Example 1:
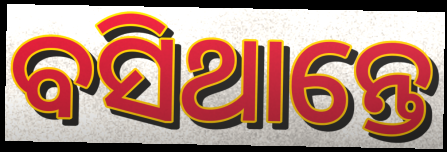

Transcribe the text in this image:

ବସିଥାନ୍ତେ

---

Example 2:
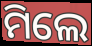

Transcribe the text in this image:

ମିଲେ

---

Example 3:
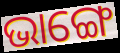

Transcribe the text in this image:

ଭାଙ୍ଗେ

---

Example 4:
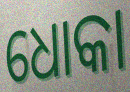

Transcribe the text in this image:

ଧୋକା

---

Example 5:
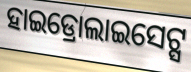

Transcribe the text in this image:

ହାଇଡ୍ରୋଲାଇସେଟ୍ସ